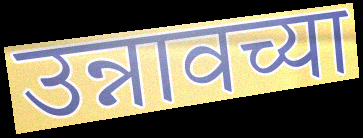
उन्नावच्या